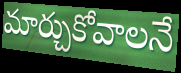
మార్చుకోవాలనే